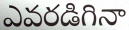
ఎవరడిగినా